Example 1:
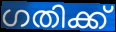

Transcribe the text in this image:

ഗതിക്ക്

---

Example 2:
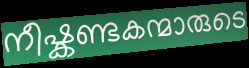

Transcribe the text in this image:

നീഷ്കണ്ടകന്മാരുടെ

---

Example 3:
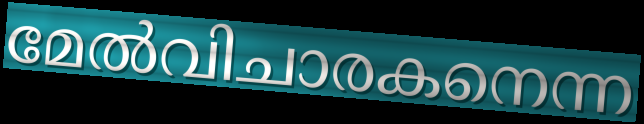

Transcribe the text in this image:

മേൽവിചാരകനെന്ന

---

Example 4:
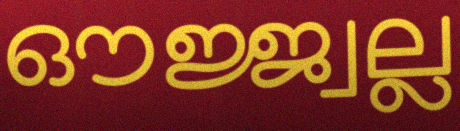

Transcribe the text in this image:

ഔജ്ജ്വല്ല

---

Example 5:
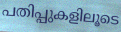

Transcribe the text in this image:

പതിപ്പുകളിലൂടെ